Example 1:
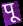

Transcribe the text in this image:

पू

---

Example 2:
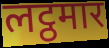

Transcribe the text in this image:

लट्ठमार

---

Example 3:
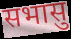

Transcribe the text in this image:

सभासु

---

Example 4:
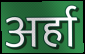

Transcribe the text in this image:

अर्हा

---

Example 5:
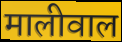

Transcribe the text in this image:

मालीवाल